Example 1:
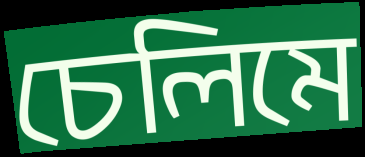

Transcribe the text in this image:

চেলিমে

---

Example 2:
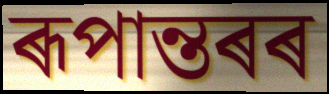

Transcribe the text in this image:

ৰূপান্তৰৰ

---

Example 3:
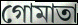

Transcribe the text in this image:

গোমাতা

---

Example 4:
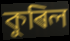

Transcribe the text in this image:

কুৰিল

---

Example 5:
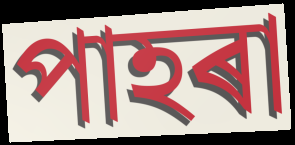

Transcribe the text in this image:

পাহৰা